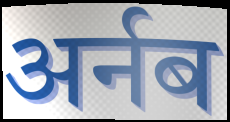
अर्नब